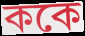
ককে